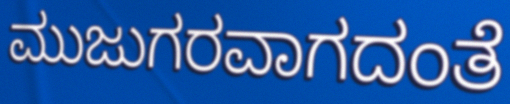
ಮುಜುಗರವಾಗದಂತೆ